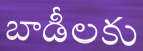
బాడీలకు